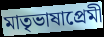
মাতৃভাষাপ্রেমী